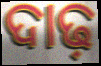
ଦାଢ଼